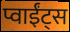
प्वाईंट्स